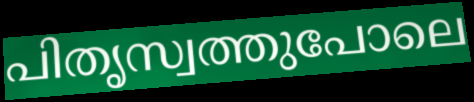
പിതൃസ്വത്തുപോലെ